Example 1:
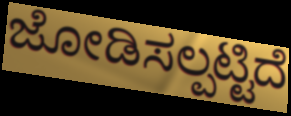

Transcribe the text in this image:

ಜೋಡಿಸಲ್ಪಟ್ಟಿದೆ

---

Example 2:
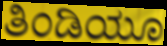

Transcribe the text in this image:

ತಿಂಡಿಯೂ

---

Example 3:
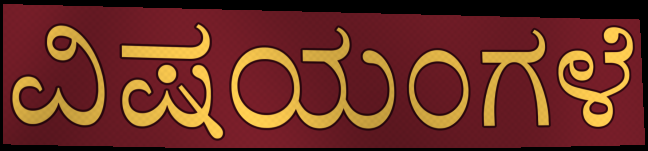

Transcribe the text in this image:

ವಿಷಯಂಗಳೆ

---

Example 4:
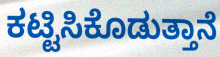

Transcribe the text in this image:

ಕಟ್ಟಿಸಿಕೊಡುತ್ತಾನೆ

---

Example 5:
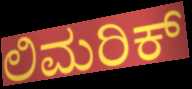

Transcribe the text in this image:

ಲಿಮರಿಕ್